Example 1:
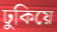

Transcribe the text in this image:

ঢুকিয়ে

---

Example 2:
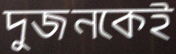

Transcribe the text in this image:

দুজনকেই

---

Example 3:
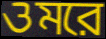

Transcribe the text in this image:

ওমরে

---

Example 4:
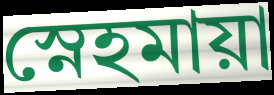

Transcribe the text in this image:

স্নেহমায়া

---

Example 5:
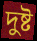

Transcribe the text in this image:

দুষ্ট